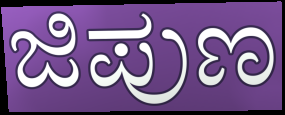
ಜಿಪುಣ